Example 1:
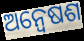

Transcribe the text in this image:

ଅନ୍ୱେଷଶ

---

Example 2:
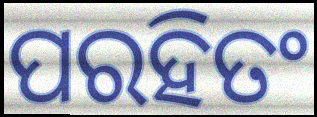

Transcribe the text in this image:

ପରହିତଂ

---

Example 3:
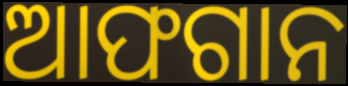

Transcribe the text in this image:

ଆଫଗାନ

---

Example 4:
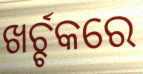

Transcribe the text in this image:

ଖର୍ଚ୍ଚକରେ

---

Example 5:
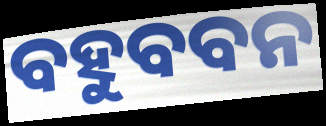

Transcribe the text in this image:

ବହୁବବନ